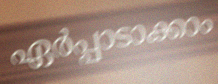
ഏർപ്പാടാക്കാം